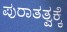
ಪುರಾತತ್ವಕ್ಕೆ